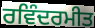
ਰਵਿੰਦਰਮੀਤ